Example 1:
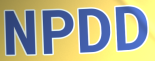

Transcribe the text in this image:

NPDD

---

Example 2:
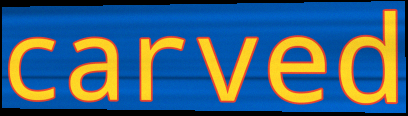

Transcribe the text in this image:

carved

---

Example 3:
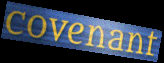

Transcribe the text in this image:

covenant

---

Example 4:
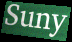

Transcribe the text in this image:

Suny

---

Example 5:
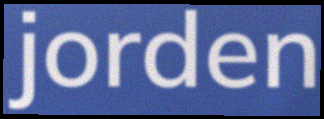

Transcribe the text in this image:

jorden